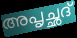
അപൃച്ഛദ്